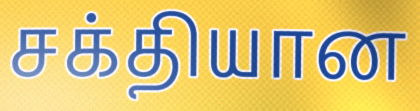
சக்தியான